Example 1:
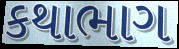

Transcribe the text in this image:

કથાભાગ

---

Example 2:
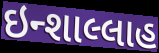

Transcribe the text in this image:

ઇન્શાલ્લાહ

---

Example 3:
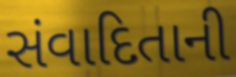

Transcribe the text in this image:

સંવાદિતાની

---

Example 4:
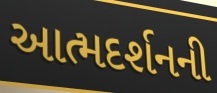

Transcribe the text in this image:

આત્મદર્શનની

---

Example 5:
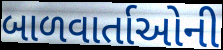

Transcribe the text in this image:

બાળવાર્તાઓની